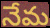
నేమ